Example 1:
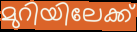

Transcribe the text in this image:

മുറിയിലേക്ക്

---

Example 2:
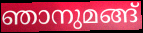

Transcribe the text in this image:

ഞാനുമങ്ങ്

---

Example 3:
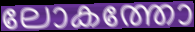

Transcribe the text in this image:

ലോകത്തോ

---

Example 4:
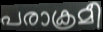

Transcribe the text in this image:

പരാക്രമീ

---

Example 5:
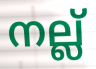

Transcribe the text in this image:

നല്ല്